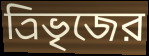
ত্রিভৃজের